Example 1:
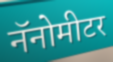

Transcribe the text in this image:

नॅनोमीटर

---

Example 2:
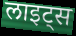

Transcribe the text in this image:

लाइट्स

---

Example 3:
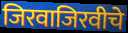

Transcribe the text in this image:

जिरवाजिरवीचे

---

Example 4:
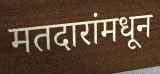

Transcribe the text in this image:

मतदारांमधून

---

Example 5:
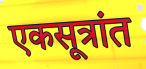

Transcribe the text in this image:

एकसूत्रांत